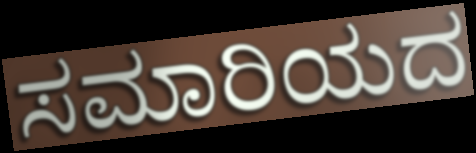
ಸಮಾರಿಯದ